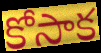
కోసాక